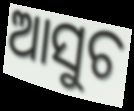
ଆସୁଚ